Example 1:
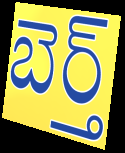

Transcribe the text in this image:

బెర్త్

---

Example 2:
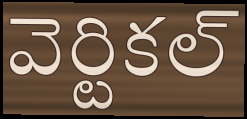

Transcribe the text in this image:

వెర్టికల్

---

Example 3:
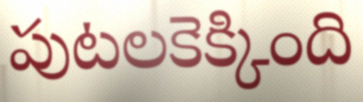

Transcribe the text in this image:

పుటలకెక్కింది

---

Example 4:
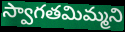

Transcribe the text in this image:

స్వాగతమిమ్మని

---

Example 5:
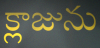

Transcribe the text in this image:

క్లాజును